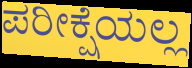
ಪರೀಕ್ಷೆಯಲ್ಲ